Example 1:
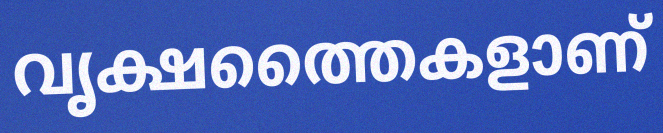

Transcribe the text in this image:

വൃക്ഷത്തൈകളാണ്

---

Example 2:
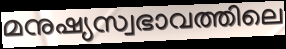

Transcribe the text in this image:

മനുഷ്യസ്വഭാവത്തിലെ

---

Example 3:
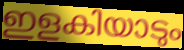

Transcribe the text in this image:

ഇളകിയാടും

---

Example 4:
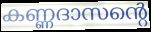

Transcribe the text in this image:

കണ്ണദാസന്റെ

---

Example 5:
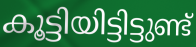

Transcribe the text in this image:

കൂട്ടിയിട്ടിട്ടുണ്ട്